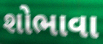
શોભાવા